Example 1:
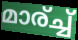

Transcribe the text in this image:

മാര്ച്ച്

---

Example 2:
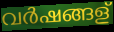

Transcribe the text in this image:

വർഷങ്ങള്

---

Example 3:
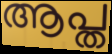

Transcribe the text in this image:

ആപ്ത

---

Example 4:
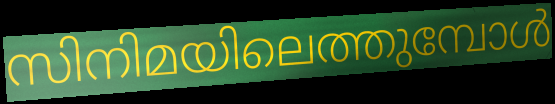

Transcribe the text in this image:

സിനിമയിലെത്തുമ്പോൾ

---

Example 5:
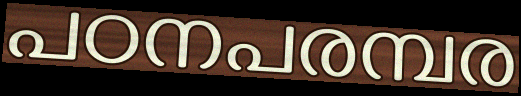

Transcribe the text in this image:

പഠനപരമ്പര